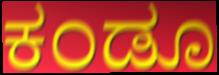
ಕಂಡೂ